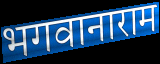
भगवानाराम